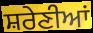
ਸ਼ਰੇਣੀਆਂ